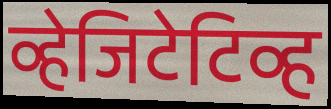
व्हेजिटेटिव्ह